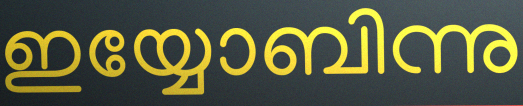
ഇയ്യോബിന്നു